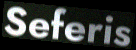
Seferis